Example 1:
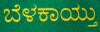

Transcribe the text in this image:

ಬೆಳಕಾಯ್ತು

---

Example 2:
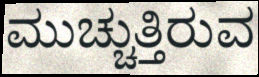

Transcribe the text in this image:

ಮುಚ್ಚುತ್ತಿರುವ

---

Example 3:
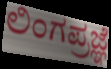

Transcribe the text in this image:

ಲಿಂಗಪ್ರಜ್ಞೆ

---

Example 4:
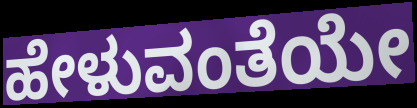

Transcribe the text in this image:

ಹೇಳುವಂತೆಯೇ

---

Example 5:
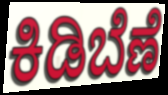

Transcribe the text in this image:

ಕಿಡಿಬೆಣೆ